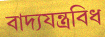
বাদ্যযন্ত্ৰবিধ